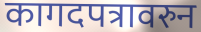
कागदपत्रावरुन